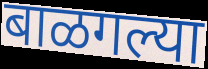
बाळगल्या